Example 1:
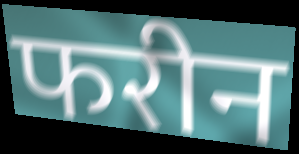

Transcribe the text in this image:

फरीन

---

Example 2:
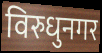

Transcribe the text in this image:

विरुधुनगर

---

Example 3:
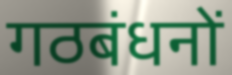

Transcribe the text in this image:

गठबंधनों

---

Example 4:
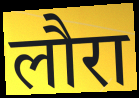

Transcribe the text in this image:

लौरा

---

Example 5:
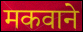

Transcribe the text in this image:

मकवाने